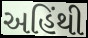
અહિંથી